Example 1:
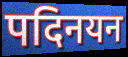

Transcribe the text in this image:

पदिनयन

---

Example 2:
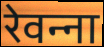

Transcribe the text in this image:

रेवन्ना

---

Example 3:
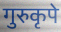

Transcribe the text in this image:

गुरुकृपे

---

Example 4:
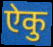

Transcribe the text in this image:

ऐकु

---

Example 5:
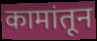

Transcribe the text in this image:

कामांतून